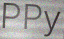
PPy